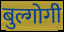
बुल्गोगी